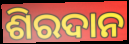
ଶିରଦାନ